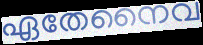
ഏതേനൈവ